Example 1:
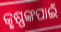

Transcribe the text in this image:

କୃଷ୍ଣଙ୍କପାଇଁ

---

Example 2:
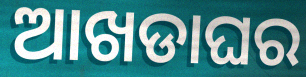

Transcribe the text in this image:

ଆଖଡାଘର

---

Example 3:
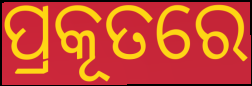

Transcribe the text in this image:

ପ୍ରକୂତରେ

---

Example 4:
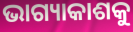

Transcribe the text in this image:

ଭାଗ୍ୟାକାଶକୁ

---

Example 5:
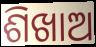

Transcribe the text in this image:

ଶିଖାଅ